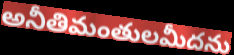
అనీతిమంతులమీదను